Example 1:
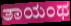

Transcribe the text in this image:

ತಾಯಂಥ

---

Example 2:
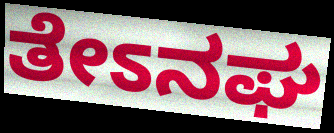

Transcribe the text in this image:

ತೇಽನಘ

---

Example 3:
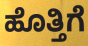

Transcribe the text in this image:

ಹೊತ್ತಿಗೆ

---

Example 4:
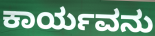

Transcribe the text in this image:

ಕಾರ್ಯವನು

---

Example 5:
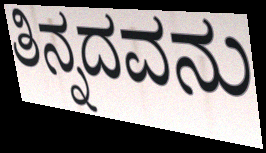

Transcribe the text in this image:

ತಿನ್ನದವನು